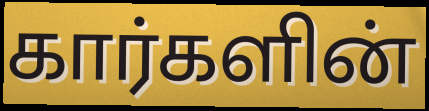
கார்களின்